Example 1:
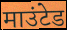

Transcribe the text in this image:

माउंटेड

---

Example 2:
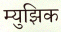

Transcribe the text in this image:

म्युझिक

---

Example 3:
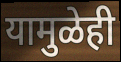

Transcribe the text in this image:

यामुळेही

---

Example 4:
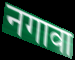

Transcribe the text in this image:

नगावा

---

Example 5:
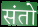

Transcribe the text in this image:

संतो